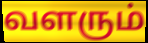
வளரும்